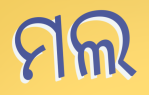
ମଲ